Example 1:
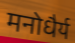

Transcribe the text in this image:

मनोधैर्य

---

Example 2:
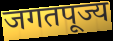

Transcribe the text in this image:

जगतपूज्य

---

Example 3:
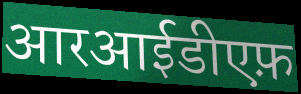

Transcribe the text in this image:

आरआईडीएफ़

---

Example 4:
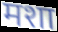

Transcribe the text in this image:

मशा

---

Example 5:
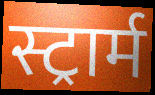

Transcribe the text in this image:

स्ट्रार्म